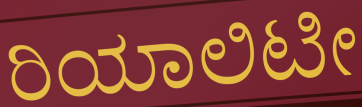
ರಿಯಾಲಿಟೀ